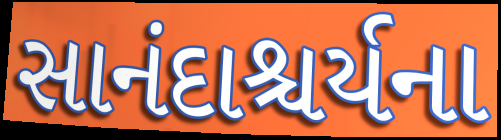
સાનંદાશ્ચર્યના